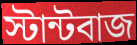
স্টান্টবাজ